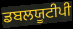
ਡਬਲਯੂਟੀਪੀ